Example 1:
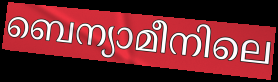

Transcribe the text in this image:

ബെന്യാമീനിലെ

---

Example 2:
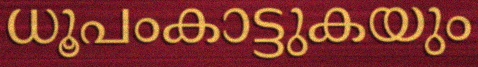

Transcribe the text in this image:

ധൂപംകാട്ടുകയും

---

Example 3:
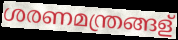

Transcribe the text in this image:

ശരണമന്ത്രങ്ങള്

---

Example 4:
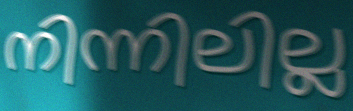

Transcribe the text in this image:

നിന്നിലില്ല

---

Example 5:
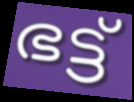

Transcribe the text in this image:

ഭട്ട്